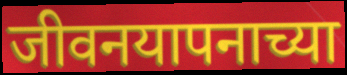
जीवनयापनाच्या